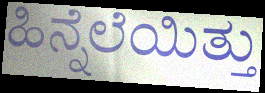
ಹಿನ್ನೆಲೆಯಿತ್ತು